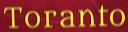
Toranto